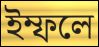
ইম্ফলে